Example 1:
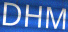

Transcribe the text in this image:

DHM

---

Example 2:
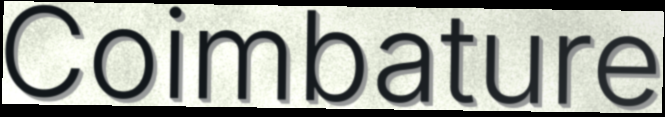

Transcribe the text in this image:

Coimbature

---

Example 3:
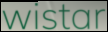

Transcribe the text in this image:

wistar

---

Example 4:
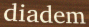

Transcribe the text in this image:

diadem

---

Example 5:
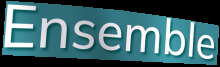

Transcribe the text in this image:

Ensemble